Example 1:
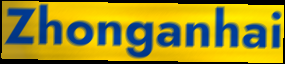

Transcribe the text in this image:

Zhonganhai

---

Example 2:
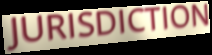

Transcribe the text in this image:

JURISDICTION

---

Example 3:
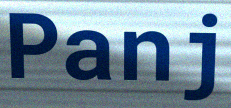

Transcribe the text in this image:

Panj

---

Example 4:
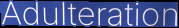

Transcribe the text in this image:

Adulteration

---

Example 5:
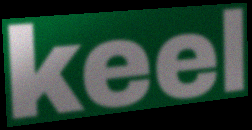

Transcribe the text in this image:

keel